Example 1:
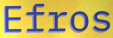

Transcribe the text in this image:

Efros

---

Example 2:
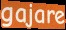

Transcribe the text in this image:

gajare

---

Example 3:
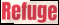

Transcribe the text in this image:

Refuge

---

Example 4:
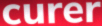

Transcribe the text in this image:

curer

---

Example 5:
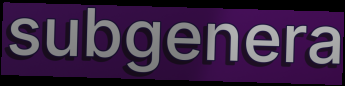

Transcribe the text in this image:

subgenera